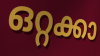
ഒറ്റക്കാ